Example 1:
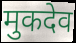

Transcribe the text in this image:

मुकदेव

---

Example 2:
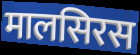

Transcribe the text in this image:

मालसिरस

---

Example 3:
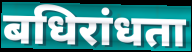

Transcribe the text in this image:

बधिरांधता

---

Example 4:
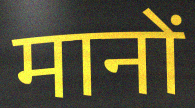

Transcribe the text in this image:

मानों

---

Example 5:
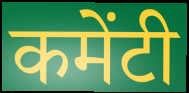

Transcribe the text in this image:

कमेंटी